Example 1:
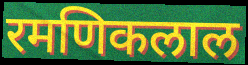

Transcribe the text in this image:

रमणिकलाल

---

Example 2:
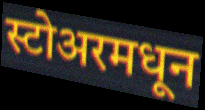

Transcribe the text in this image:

स्टोअरमधून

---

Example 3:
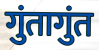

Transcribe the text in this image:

गुंतागुंत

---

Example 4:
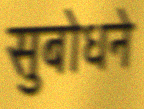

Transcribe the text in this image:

सुबोधने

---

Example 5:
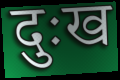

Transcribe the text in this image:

दुःख